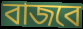
বাজবে